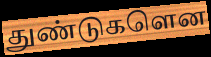
துண்டுகளென